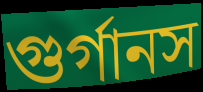
গুর্গানস